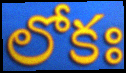
లోకః